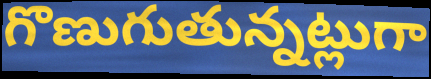
గొణుగుతున్నట్లుగా